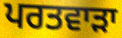
ਪਰਤਵਾੜਾ